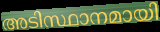
അടിസ്ഥാനമായി